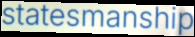
statesmanship